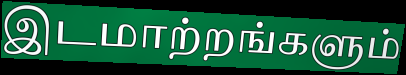
இடமாற்றங்களும்